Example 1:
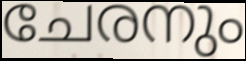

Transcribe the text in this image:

ചേരനും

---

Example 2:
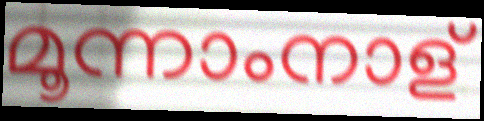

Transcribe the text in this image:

മൂന്നാംനാള്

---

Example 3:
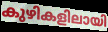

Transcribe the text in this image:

കുഴികളിലായി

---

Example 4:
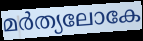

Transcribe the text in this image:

മർത്യലോകേ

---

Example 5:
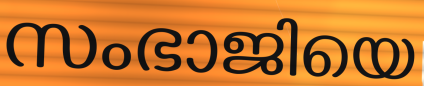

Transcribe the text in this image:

സംഭാജിയെ